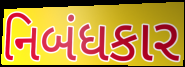
નિબંધકાર